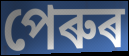
পেৰুৰ